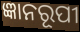
ଜ୍ଞାନରୂପୀ